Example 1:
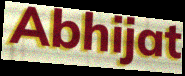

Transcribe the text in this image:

Abhijat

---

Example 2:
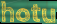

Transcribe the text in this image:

hotu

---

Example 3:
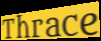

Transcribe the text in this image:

Thrace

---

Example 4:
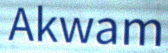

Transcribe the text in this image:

Akwam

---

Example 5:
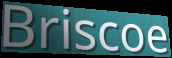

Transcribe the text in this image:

Briscoe